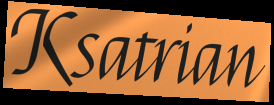
Ksatrian